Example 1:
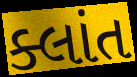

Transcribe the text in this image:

ક્લાંત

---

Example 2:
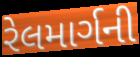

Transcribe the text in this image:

રેલમાર્ગની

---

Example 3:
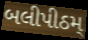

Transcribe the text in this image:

બલીપીઠમ્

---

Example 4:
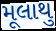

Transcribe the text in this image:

મૂલાથુ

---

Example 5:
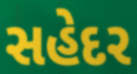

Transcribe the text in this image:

સહેદર